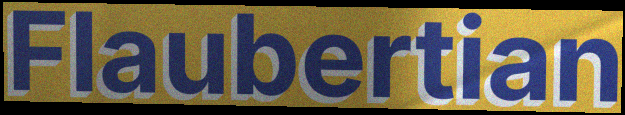
Flaubertian